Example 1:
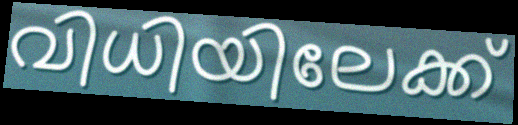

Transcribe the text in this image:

വിധിയിലേക്ക്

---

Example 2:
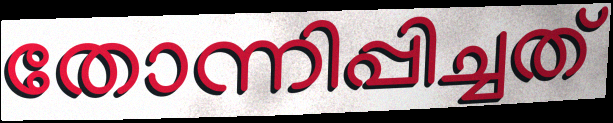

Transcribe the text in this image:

തോന്നിപ്പിച്ചത്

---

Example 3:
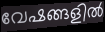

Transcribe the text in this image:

വേഷങ്ങളിൽ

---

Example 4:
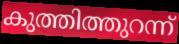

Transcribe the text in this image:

കുത്തിത്തുറന്ന്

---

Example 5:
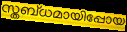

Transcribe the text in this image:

സ്തബ്ധമായിപ്പോയ